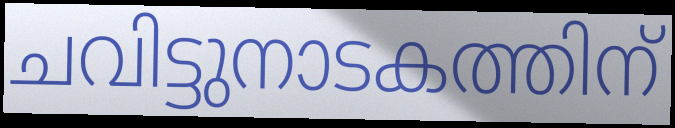
ചവിട്ടുനാടകത്തിന്